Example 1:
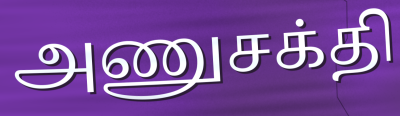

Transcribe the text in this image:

அணுசக்தி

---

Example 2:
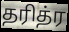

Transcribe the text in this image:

தரித்ர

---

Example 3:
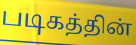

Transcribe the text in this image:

படிகத்தின்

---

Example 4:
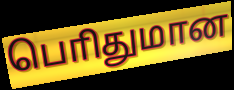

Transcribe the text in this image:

பெரிதுமான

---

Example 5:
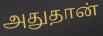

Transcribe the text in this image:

அதுதான்